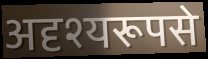
अदृश्यरूपसे